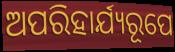
ଅପରିହାର୍ଯ୍ୟରୂପେ